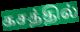
கசத்தில்